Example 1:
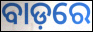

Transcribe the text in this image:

ବାଡ଼ରେ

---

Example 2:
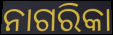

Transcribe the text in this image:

ନାଗରିକା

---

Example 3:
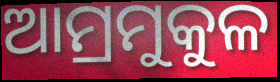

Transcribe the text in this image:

ଆମ୍ରମୁକୁଳ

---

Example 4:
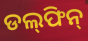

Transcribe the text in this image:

ଡଲ୍‍ଫିନ୍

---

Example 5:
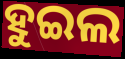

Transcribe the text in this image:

ହୁଇଲ